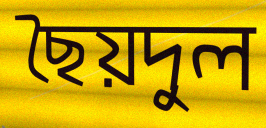
ছৈয়দুল